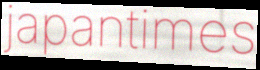
japantimes